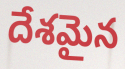
దేశమైన